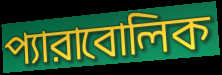
প্যারাবোলিক